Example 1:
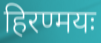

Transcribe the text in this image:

हिरण्मयः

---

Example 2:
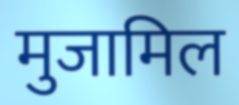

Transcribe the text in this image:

मुजामिल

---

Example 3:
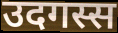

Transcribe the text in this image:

उदगस्स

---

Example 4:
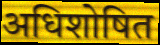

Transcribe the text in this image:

अधिशोषित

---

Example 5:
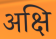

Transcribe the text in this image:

अक्षि